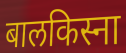
बालकिस्ना